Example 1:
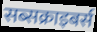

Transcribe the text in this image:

सब्सक्राइबर्स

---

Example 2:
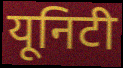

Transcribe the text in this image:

यूनिटी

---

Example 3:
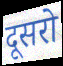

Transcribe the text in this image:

दूसरो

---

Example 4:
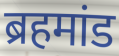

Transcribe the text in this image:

ब्रहमांड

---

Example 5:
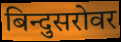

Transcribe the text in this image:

बिन्दुसरोवर